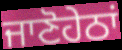
ਜਾਣੋਹੇਠਾਂ